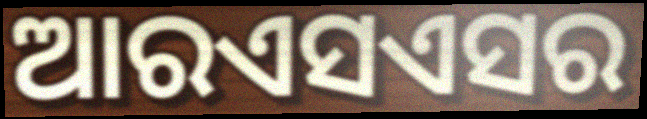
ଆରଏସଏସର